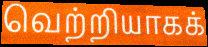
வெற்றியாகக்